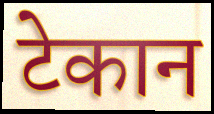
टेकान